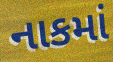
નાકમાં